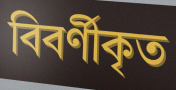
বিবর্ণীকৃত